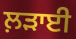
ਲ਼ੜਾਈ